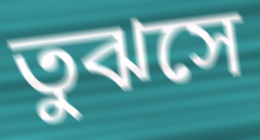
তুঝসে